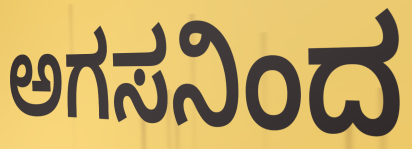
ಅಗಸನಿಂದ